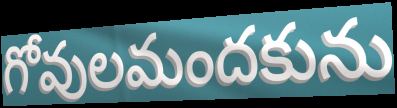
గోవులమందకును